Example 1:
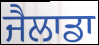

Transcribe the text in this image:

ਜੈਲਾਡਾ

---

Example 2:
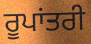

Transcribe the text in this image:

ਰੂਪਾਂਤਰੀ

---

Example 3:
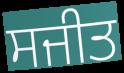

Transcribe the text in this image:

ਸਜੀਤ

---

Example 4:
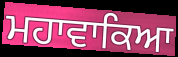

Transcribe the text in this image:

ਮਹਾਵਾਕਿਆ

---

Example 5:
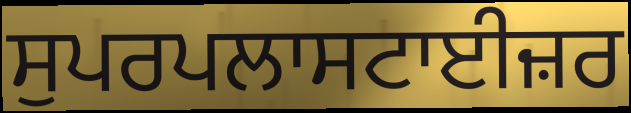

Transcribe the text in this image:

ਸੁਪਰਪਲਾਸਟਾਈਜ਼ਰ